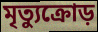
মৃত্যুক্রোড়